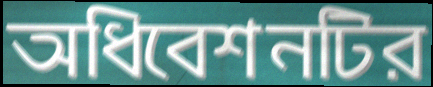
অধিবেশনটির